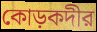
কোড়কদীর